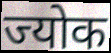
ज्योक